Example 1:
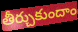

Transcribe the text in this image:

తీర్చుకుందాం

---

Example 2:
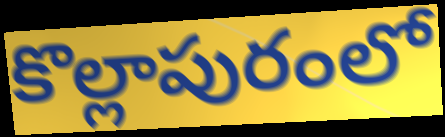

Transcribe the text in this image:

కొల్లాపురంలో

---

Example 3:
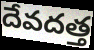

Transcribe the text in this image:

దేవదత్త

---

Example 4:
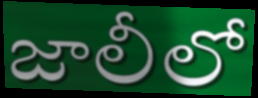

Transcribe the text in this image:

జాలీలో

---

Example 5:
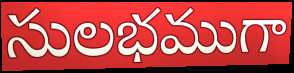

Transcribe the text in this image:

సులభముగా